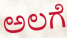
ಅಲಗೆ